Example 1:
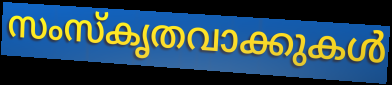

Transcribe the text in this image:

സംസ്കൃതവാക്കുകൾ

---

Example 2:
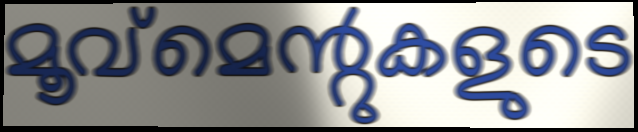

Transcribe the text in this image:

മൂവ്മെന്റുകളുടെ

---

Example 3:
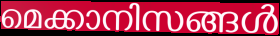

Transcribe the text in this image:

മെക്കാനിസങ്ങൾ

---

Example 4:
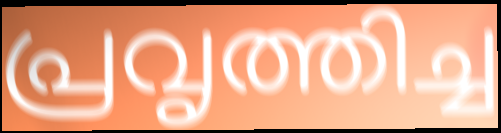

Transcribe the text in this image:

പ്രവൃത്തിച്ച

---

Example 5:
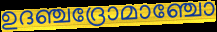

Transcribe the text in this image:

ഉദഞ്ചദ്രോമാഞ്ചോ